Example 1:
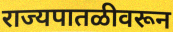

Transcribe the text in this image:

राज्यपातळीवरून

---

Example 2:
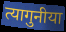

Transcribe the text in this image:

त्यागुनीया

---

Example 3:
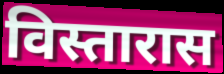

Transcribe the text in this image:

विस्तारास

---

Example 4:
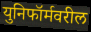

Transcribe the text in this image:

युनिफॉर्मवरील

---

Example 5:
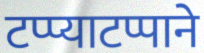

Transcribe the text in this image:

टप्प्याटप्पाने